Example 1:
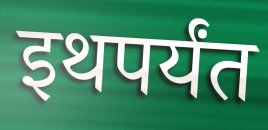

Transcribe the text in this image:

इथपर्यंत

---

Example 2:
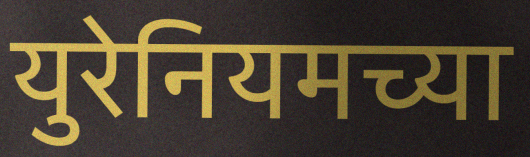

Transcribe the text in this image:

युरेनियमच्या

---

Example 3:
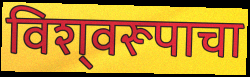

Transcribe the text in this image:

विश्वरूपाचा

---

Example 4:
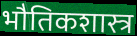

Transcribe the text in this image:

भौतिकशास्त्र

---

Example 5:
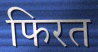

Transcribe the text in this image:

फिरत